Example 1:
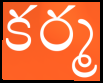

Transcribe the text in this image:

కర్మ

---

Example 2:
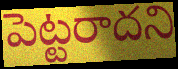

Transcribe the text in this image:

పెట్టరాదని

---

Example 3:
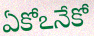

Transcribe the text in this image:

ఏకోఽనేకో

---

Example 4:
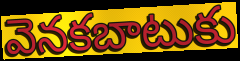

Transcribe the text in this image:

వెనకబాటుకు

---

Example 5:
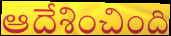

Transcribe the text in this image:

ఆదేశించింది